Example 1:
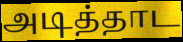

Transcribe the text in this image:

அடித்தாட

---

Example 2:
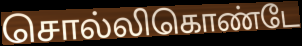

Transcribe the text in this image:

சொல்லிகொண்டே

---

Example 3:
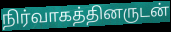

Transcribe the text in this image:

நிர்வாகத்தினருடன்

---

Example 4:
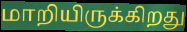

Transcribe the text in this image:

மாறியிருக்கிறது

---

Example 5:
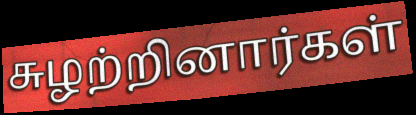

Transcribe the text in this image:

சுழற்றினார்கள்